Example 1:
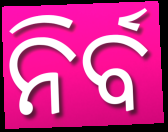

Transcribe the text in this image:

ନିର୍ବ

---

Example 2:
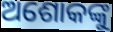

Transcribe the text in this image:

ଅଶୋକଙ୍କୁ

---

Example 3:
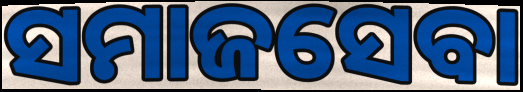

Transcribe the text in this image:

ସମାଜସେବା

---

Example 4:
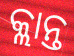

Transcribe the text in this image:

କ୍ଲାନ୍ତ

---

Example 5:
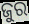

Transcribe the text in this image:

ଜୁର